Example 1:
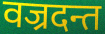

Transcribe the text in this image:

वज्रदन्त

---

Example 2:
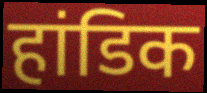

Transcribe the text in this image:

हांडिक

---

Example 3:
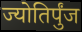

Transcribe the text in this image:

ज्योतिर्पुंज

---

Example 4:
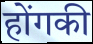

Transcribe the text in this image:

होंगकी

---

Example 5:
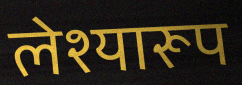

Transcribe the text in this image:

लेश्यारूप